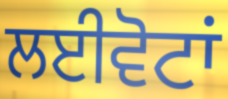
ਲਈਵੋਟਾਂ